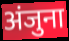
अंजुना